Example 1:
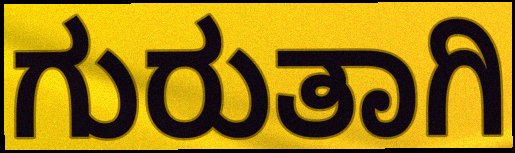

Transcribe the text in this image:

ಗುರುತಾಗಿ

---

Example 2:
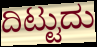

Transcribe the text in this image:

ದಿಟ್ಟುದು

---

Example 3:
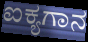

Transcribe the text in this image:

ಐಕ್ಯಗಾನ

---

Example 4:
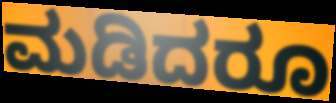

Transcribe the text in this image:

ಮಡಿದರೂ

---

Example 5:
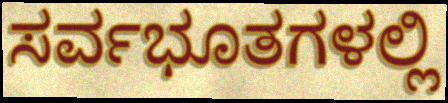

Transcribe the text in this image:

ಸರ್ವಭೂತಗಳಲ್ಲಿ